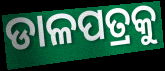
ଡାଳପତ୍ରକୁ